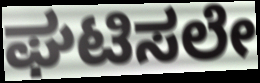
ಘಟಿಸಲೇ